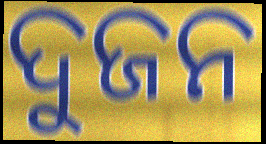
ଦୁଜନ